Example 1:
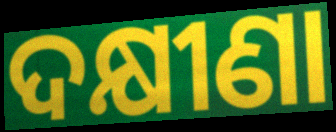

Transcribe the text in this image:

ଦକ୍ଷୀଣା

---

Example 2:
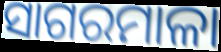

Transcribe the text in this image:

ସାଗରମାଳା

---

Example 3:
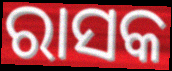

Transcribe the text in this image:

ରାସକ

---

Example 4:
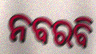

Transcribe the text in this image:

ନବରବି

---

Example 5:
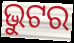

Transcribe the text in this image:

ଭୁଟର